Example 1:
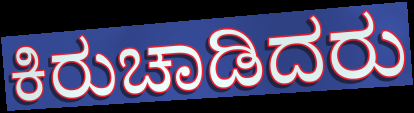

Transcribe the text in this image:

ಕಿರುಚಾಡಿದರು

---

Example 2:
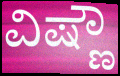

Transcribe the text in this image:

ವಿಷ್ಣೌ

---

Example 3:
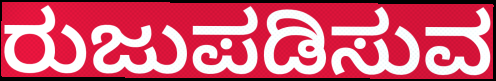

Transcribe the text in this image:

ರುಜುಪಡಿಸುವ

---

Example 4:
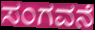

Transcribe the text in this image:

ಸಂಗವನೆ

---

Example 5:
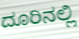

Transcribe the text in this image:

ದೂರಿನಲ್ಲಿ